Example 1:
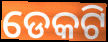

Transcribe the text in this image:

ଡେକଟି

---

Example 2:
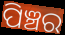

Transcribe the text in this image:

ପିଞ୍ଚର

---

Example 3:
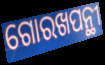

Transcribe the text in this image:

ଗୋରଖପନ୍ଥୀ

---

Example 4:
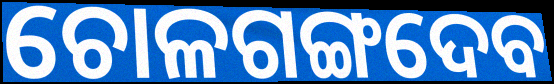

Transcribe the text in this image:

ଚୋଳଗଙ୍ଗଦେବ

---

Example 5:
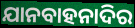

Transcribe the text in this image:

ଯାନବାହନାଦିର